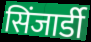
सिंजार्डी